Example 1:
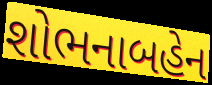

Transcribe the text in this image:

શોભનાબહેન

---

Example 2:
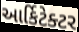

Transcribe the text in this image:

આર્કિટેક્ટર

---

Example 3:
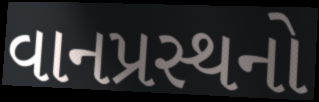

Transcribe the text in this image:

વાનપ્રસ્થનો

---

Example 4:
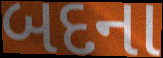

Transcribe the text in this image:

બદના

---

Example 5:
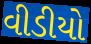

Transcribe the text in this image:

વીડીયો